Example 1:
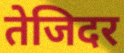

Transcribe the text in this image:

तेजिदर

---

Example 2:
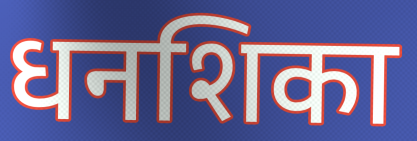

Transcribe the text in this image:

धनशिका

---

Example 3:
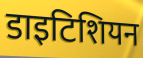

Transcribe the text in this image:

डाइटिशियन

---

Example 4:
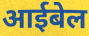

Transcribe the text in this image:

आईबेल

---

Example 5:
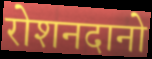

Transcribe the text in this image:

रोशनदानो